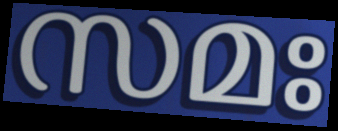
സമഃ